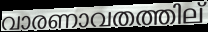
വാരണാവതത്തില്